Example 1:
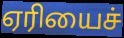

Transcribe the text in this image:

ஏரியைச்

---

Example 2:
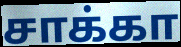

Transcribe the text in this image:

சாக்கா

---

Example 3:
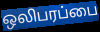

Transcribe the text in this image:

ஒலிபரப்பை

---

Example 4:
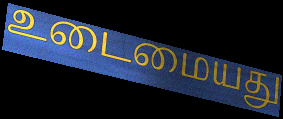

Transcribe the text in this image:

உடைமையது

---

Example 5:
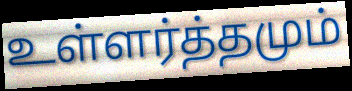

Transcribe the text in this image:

உள்ளர்த்தமும்